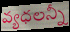
వ్యధలన్నీ